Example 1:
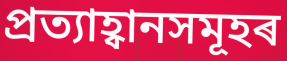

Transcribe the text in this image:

প্ৰত্যাহ্বানসমূহৰ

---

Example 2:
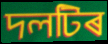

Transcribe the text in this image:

দলটিৰ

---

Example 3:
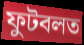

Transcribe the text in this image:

ফুটবলত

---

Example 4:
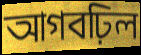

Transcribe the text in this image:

আগবঢ়িল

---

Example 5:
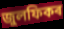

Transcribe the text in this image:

জুলফিকৰ